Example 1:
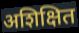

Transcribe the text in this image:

अशिक्षित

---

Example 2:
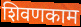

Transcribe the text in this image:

शिवणकाम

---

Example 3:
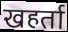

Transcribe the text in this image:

खहर्ता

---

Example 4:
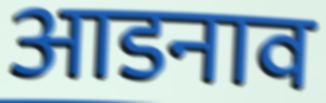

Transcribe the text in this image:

आडनाव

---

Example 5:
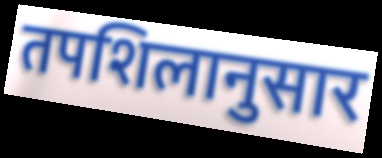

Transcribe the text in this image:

तपशिलानुसार